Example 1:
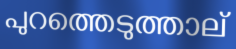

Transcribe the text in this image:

പുറത്തെടുത്താല്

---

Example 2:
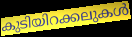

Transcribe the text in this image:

കുടിയിറക്കലുകൾ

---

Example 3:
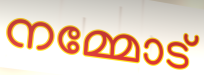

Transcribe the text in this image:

നമ്മോട്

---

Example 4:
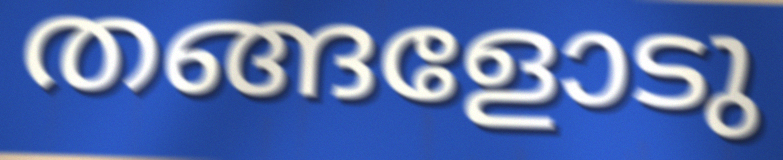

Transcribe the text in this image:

തങ്ങളോടു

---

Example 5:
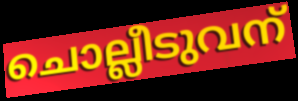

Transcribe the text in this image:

ചൊല്ലീടുവന്